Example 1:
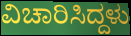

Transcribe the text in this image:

ವಿಚಾರಿಸಿದ್ದಳು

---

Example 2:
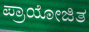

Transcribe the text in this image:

ಪ್ರಾಯೋಜಿತ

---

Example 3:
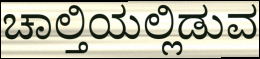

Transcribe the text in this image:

ಚಾಲ್ತಿಯಲ್ಲಿಡುವ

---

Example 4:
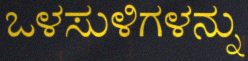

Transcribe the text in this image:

ಒಳಸುಳಿಗಳನ್ನು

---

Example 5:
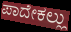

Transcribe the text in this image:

ಪಾದೇಕಲ್ಲು